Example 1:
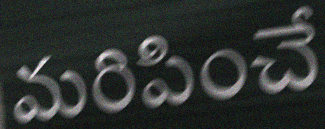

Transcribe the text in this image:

మరిపించే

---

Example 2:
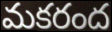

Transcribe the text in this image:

మకరంద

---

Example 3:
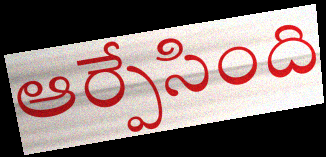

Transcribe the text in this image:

ఆర్పేసింది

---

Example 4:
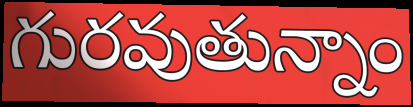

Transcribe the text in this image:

గురవుతున్నాం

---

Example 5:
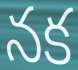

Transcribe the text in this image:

నక